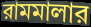
রামমালার